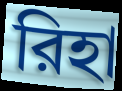
রিহা